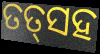
ତତ୍‌ସହ